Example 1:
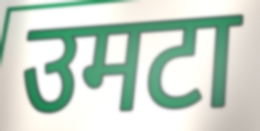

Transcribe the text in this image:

उमटा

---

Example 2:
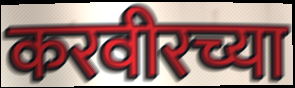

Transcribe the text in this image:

करवीरच्या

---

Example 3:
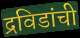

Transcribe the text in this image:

द्रविडांची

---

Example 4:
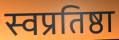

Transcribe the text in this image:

स्वप्रतिष्ठा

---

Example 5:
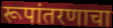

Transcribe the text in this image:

रूपांतरणाचा